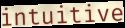
intuitive